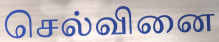
செல்வினை